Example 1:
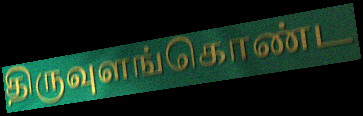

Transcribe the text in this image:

திருவுளங்கொண்ட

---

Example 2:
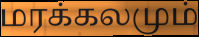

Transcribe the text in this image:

மரக்கலமும்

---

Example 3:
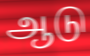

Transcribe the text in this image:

ஆடு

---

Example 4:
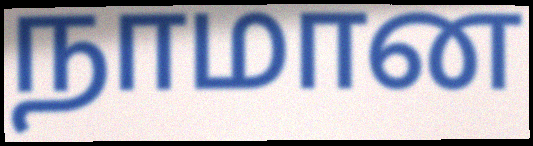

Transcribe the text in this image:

நாமான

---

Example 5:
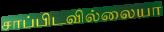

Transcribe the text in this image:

சாப்பிடவில்லையா